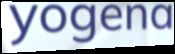
yogena